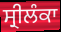
ਸ੍ਰੀਲੰਕਾ